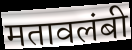
मतावलंबी